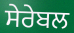
ਸੇਰੇਬਲ